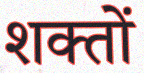
शक्तों